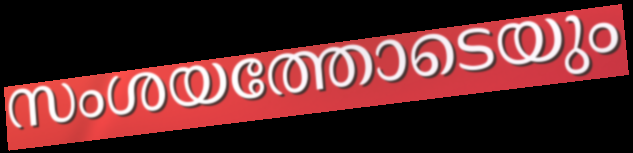
സംശയത്തോടെയും